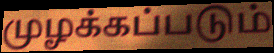
முழக்கப்படும்